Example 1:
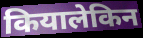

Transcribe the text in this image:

कियालेकिन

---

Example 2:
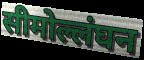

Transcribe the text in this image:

सीमोल्लंघन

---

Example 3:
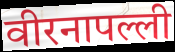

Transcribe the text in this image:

वीरनापल्ली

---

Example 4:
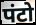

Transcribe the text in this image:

पंटो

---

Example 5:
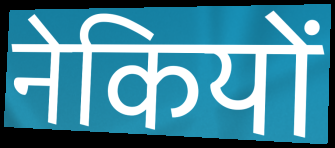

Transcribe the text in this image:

नेकियों